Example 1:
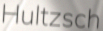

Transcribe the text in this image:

Hultzsch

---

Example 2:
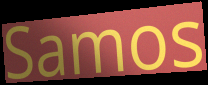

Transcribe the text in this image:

Samos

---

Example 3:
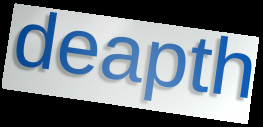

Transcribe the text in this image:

deapth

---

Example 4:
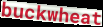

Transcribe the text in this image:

buckwheat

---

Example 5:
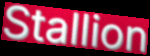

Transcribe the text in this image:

Stallion